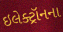
ઇલેક્ટ્રૉનના